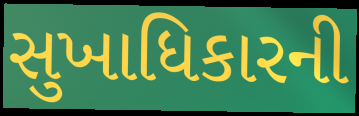
સુખાધિકારની